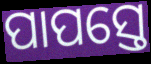
ପାପସ୍ତେ